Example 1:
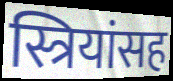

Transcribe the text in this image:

स्त्रियांसह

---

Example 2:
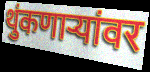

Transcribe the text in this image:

थुंकणाऱ्यांवर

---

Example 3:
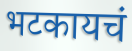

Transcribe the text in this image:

भटकायचं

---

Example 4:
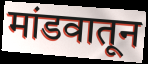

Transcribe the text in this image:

मांडवातून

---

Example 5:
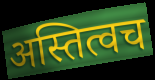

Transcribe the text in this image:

अस्तित्वच